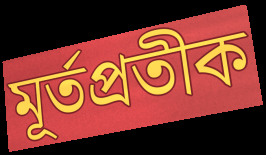
মূর্তপ্রতীক